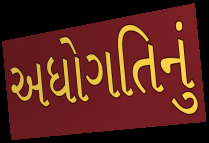
અધોગતિનું